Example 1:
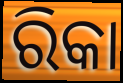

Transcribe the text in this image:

ରିକା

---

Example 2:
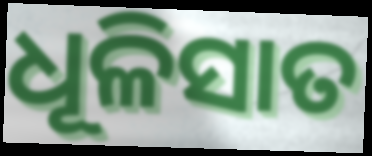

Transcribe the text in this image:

ଧୂଳିସାତ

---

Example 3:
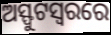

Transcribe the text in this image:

ଅସ୍ଫୁଟସ୍ୱରରେ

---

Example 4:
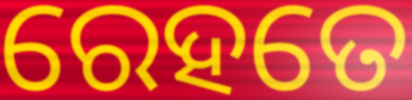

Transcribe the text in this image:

ରେହତେ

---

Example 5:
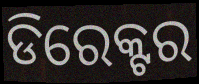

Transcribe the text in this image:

ଡିରେକ୍ଟର